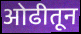
ओढीतून